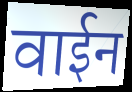
वाईन